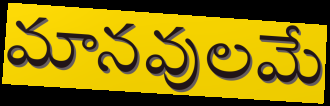
మానవులమే